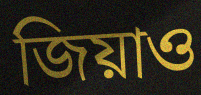
জিয়াও